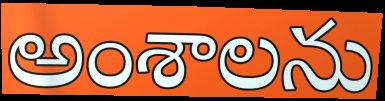
అంశాలను